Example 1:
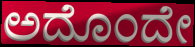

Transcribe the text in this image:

ಅದೊಂದೇ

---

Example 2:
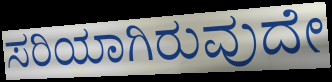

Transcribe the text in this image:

ಸರಿಯಾಗಿರುವುದೇ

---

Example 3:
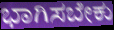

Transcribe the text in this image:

ಭಾಗಿಸಬೇಕು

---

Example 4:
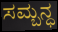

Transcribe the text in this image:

ಸಮ್ಬನ್ಧ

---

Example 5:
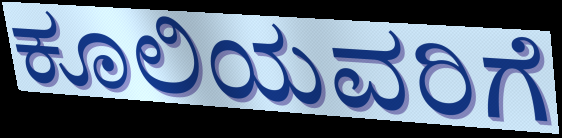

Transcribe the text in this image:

ಕೂಲಿಯವರಿಗೆ